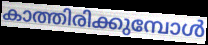
കാത്തിരിക്കുമ്പോൾ